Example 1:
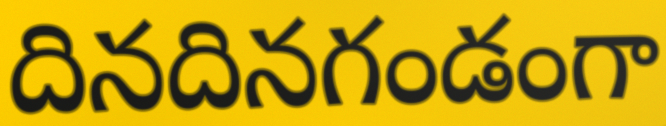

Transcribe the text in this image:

దినదినగండంగా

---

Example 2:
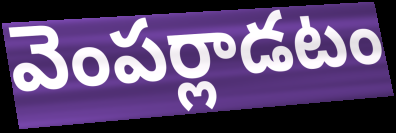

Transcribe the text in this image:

వెంపర్లాడటం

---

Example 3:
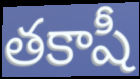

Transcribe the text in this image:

తకాషీ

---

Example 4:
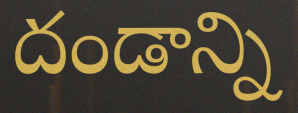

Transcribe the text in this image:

దండాన్ని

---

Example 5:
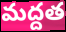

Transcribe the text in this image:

మద్దత